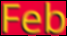
Feb